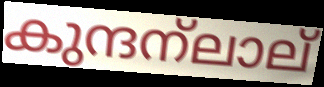
കുന്ദന്ലാല്